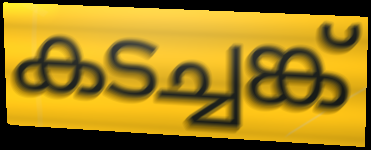
കടച്ചങ്ക്